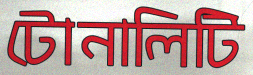
টোনালিটি